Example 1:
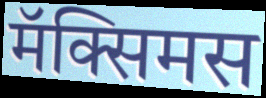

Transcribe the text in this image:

मॅक्सिमस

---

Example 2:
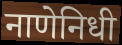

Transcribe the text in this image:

नाणेनिधी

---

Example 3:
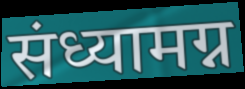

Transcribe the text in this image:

संध्यामग्न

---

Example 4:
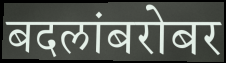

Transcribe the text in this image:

बदलांबरोबर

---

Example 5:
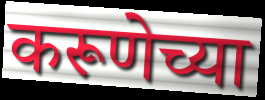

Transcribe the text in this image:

करूणेच्या